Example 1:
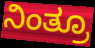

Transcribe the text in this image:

ನಿಂತ್ರೂ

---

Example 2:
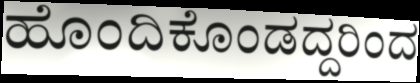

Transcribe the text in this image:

ಹೊಂದಿಕೊಂಡದ್ದರಿಂದ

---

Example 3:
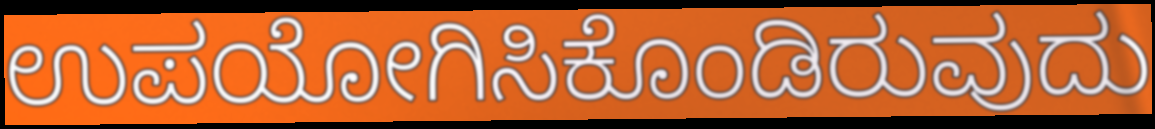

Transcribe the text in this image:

ಉಪಯೋಗಿಸಿಕೊಂಡಿರುವುದು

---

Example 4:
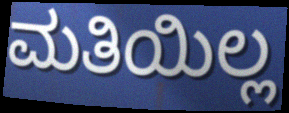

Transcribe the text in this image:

ಮತಿಯಿಲ್ಲ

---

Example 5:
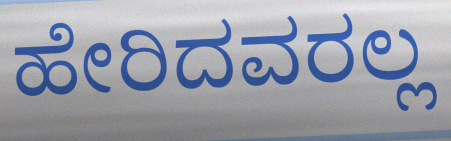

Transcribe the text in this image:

ಹೇರಿದವರಲ್ಲ